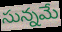
సున్నమే